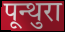
पून्थुरा